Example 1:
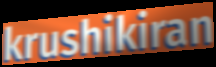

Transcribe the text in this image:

krushikiran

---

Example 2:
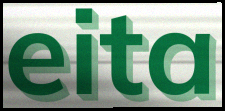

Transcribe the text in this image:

eita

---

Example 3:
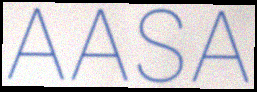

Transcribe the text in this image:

AASA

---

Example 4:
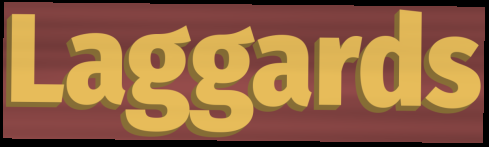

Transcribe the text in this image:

Laggards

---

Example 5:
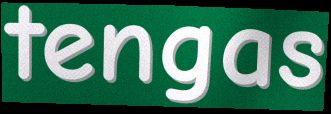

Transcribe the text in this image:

tengas